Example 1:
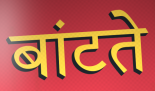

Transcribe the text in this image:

बांटते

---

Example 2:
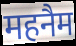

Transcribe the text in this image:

महनैम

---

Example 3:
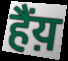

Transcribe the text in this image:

हैंय़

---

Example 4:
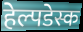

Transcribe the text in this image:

हेल्पडेस्क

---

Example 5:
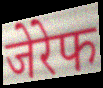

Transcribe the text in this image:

जेरेफ